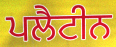
ਪਲੈਟੀਨ